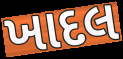
ખાદલ